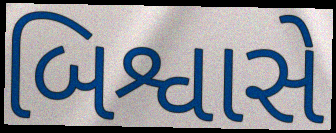
બિશ્વાસે